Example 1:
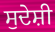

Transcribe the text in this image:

ਸੁਦੇਸ਼ੀ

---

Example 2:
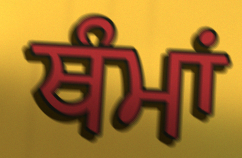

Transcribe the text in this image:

ਥੰਮਾਂ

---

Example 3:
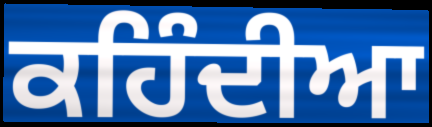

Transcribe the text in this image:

ਕਹਿੰਦੀਆ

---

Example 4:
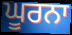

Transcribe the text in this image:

ਘੂਰਨਾ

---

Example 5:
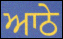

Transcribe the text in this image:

ਆਠੇ